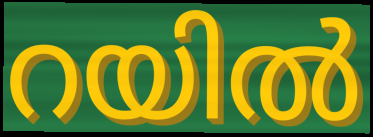
റയിൽ